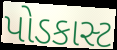
પોડકાસ્ટ